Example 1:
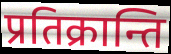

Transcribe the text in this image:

प्रतिक्रान्ति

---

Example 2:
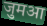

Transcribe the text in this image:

जुमआ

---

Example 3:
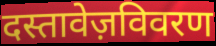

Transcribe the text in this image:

दस्तावेज़विवरण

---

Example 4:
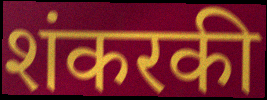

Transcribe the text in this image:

शंकरकी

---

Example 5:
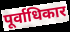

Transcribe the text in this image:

पूर्वाधिकार